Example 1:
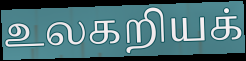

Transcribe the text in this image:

உலகறியக்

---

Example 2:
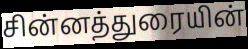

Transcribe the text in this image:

சின்னத்துரையின்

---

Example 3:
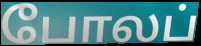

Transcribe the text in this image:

போலப்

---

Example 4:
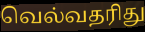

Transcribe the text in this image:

வெல்வதரிது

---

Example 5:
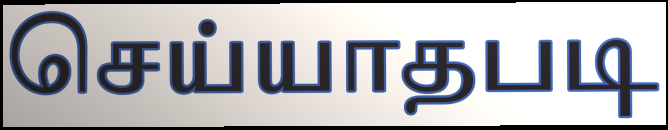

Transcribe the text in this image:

செய்யாதபடி